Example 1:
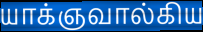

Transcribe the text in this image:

யாக்ஞவால்கிய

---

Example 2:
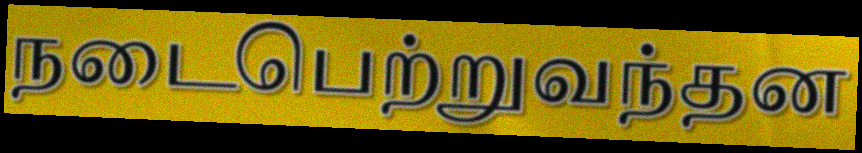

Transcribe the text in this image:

நடைபெற்றுவந்தன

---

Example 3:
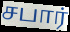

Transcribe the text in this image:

சபார்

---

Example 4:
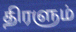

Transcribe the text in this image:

திரளும்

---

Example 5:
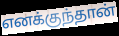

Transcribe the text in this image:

எனக்குந்தான்